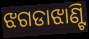
ଝଗଡାଝାଣ୍ଟି